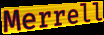
Merrell